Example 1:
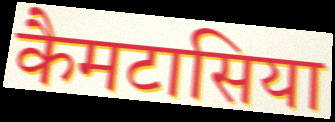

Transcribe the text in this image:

कैमटासिया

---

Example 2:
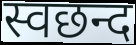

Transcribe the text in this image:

स्वछन्द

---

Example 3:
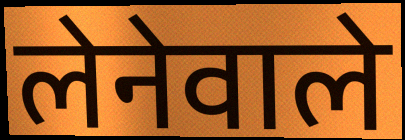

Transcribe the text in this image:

लेनेवाले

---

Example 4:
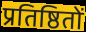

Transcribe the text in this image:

प्रतिष्ठितों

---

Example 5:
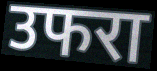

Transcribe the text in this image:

उफरा